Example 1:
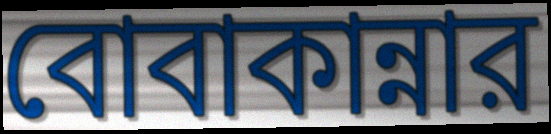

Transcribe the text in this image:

বোবাকান্নার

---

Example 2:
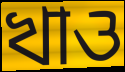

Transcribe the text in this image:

খাও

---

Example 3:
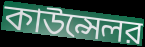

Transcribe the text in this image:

কাউন্সেলর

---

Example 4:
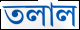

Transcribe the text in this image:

তলাল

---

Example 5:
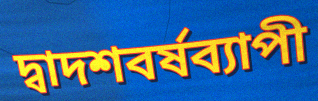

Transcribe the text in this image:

দ্বাদশবর্ষব্যাপী